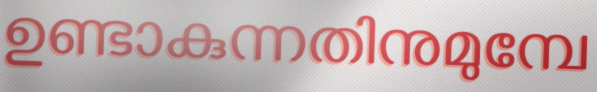
ഉണ്ടാകുന്നതിനുമുമ്പേ